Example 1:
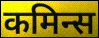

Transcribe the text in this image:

कमिन्स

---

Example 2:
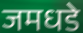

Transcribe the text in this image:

जमधडे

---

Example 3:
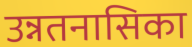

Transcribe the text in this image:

उन्नतनासिका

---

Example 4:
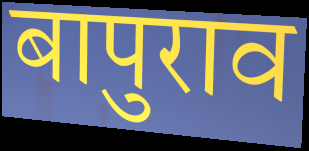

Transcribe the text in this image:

बापुराव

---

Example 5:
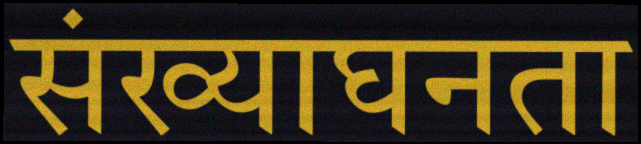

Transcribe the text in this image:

संख्याघनता